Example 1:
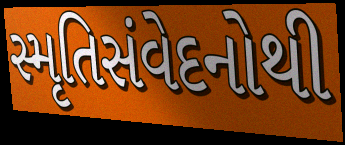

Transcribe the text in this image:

સ્મૃતિસંવેદનોથી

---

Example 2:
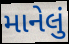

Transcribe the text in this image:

માનેલું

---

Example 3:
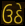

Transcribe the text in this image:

ઉઠે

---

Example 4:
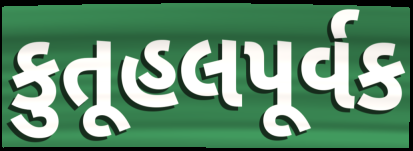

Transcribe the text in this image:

કુતૂહલપૂર્વક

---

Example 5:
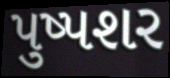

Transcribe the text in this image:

પુષ્પશર